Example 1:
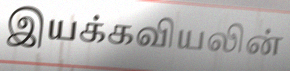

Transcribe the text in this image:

இயக்கவியலின்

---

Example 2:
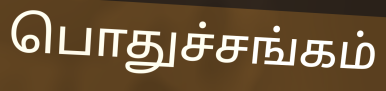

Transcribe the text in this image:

பொதுச்சங்கம்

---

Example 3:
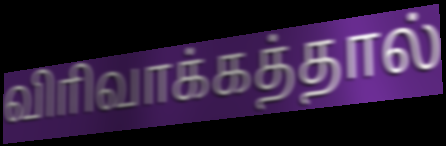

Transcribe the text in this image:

விரிவாக்கத்தால்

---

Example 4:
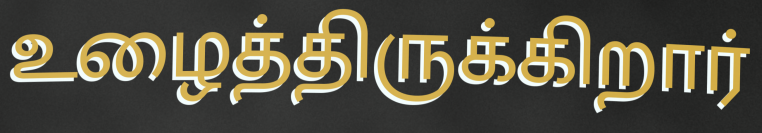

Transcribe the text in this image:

உழைத்திருக்கிறார்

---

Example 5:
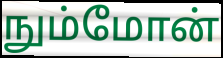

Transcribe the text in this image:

நும்மோன்